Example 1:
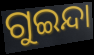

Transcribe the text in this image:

ଗୁଇନ୍ଦା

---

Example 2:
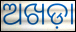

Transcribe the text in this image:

ଅଖଡ଼ା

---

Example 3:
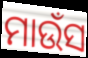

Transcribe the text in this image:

ମାଉଁସ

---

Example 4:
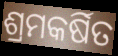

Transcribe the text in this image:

ଶ୍ରମକର୍ଷିତ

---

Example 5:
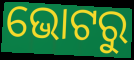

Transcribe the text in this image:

ଭୋଟରୁ